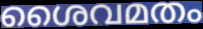
ശൈവമതം